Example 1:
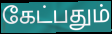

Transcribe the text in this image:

கேட்பதும்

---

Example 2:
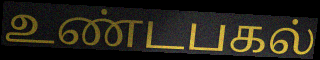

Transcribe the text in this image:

உண்டபகல்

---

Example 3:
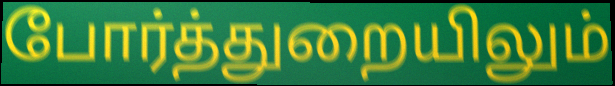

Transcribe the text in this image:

போர்த்துறையிலும்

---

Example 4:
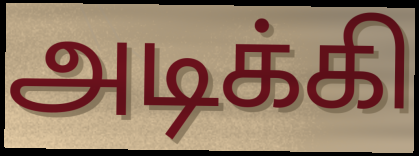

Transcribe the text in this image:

அடிக்கி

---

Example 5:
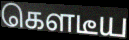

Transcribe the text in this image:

கௌடீய